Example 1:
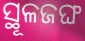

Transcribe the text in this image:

ସ୍ଥୂଳଜଙ୍ଘ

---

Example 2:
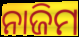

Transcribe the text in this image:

ନାଜିମ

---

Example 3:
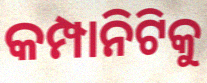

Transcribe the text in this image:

କମ୍ପାନିଟିକୁ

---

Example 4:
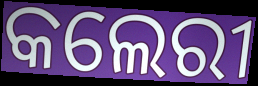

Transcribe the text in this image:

କଲେରୀ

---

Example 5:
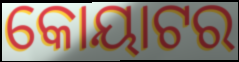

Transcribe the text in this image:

କୋୟାଟର